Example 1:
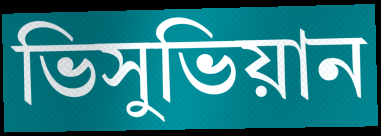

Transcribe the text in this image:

ভিসুভিয়ান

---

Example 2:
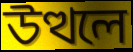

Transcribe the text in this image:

উত্থলে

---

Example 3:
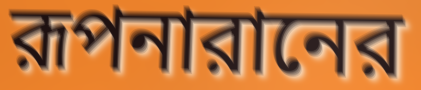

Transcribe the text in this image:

রূপনারানের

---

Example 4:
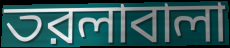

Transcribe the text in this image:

তরলাবালা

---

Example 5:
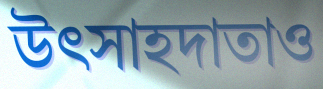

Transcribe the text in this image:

উৎসাহদাতাও